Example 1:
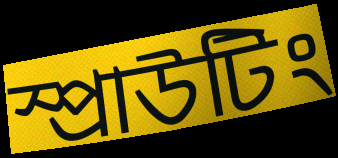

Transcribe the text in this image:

স্প্রাউটিং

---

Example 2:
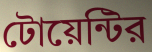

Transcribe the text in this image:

টোয়েন্টির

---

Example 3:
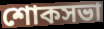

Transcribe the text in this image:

শোকসভা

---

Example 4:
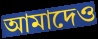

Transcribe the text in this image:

আমাদেও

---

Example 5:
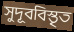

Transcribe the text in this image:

সুদূববিস্তৃত